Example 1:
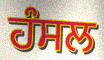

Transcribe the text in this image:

ਹੰਸਲ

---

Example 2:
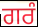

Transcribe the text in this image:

ਗਰੰ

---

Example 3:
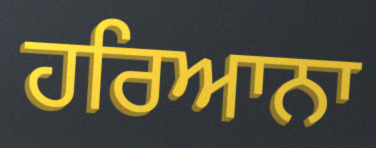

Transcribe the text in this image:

ਹਰਿਆਨਾ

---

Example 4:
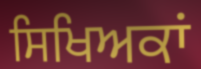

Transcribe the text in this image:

ਸਿਖਿਅਕਾਂ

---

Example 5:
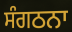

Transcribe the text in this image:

ਸੰਗਠਨਾ